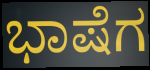
ಭಾಷೆಗ